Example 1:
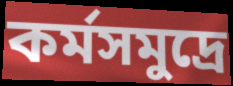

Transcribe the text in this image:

কর্মসমুদ্রে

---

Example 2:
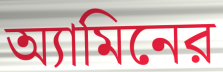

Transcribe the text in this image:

অ্যামিনের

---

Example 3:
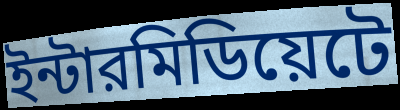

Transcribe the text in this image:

ইন্টারমিডিয়েটে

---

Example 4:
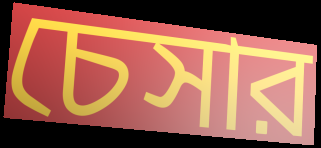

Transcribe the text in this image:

চেসার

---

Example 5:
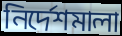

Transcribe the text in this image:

নির্দেশমালা